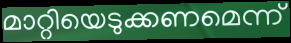
മാറ്റിയെടുക്കണമെന്ന്